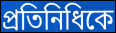
প্রতিনিধিকে